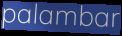
palambar